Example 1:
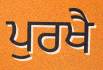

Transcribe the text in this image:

ਪੁਰਖੈ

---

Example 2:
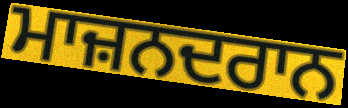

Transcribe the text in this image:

ਮਾਜ਼ਨਦਰਾਨ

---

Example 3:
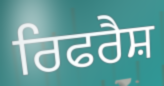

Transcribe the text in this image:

ਰਿਫਰੈਸ਼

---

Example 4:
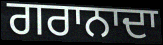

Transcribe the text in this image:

ਗਰਾਨਾਦਾ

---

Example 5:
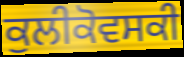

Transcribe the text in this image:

ਕੁਲੀਕੋਵਸਕੀ